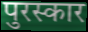
पुरस्कार